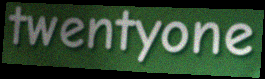
twentyone